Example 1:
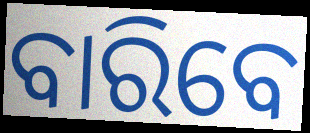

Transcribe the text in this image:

ବାରିବେ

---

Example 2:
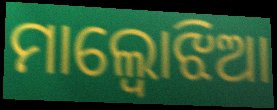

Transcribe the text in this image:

ମାଲ୍ବୋଝିଆ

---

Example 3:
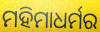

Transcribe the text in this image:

ମହିମାଧର୍ମର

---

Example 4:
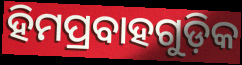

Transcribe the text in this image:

ହିମପ୍ରବାହଗୁଡ଼ିକ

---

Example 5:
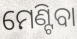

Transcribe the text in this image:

ମେଣ୍ଟିବା